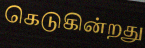
கெடுகின்றது